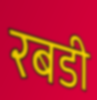
रबडी